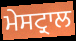
ਮੇਸਟ੍ਰਾਲ